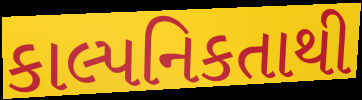
કાલ્પનિકતાથી